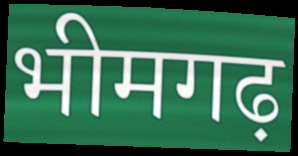
भीमगढ़